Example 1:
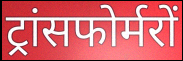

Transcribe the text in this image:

ट्रांसफोर्मरों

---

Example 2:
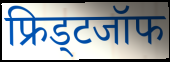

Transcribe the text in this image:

फ्रिड्टजॉफ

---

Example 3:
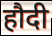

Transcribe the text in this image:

हौदी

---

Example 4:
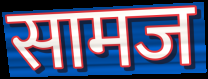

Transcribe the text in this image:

सामज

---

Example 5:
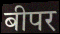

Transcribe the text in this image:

बीपर